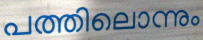
പത്തിലൊന്നും